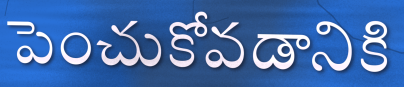
పెంచుకోవడానికి